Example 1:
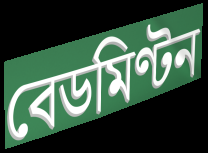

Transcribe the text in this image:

বেডমিণ্টন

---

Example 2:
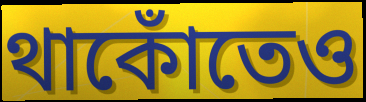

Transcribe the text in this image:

থাকোঁতেও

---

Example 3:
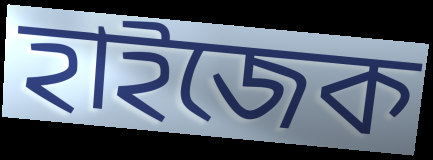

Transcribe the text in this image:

হাইজেক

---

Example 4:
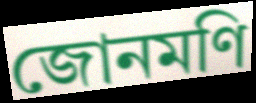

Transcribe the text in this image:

জোনমণি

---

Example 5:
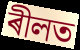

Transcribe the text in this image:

ৰীলত